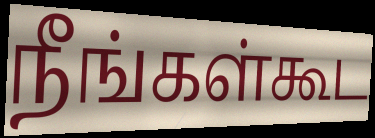
நீங்கள்கூட